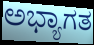
ಅಭ್ಯಾಗತ